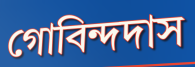
গোবিন্দদাস